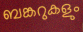
ബങ്കറുകളും